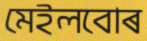
মেইলবোৰ